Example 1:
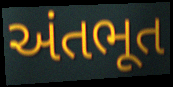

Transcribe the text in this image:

અંતભૂત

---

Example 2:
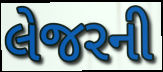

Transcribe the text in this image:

લેજરની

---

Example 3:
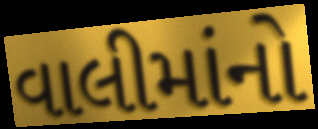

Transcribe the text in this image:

વાલીમાંનો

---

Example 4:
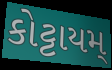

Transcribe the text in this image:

કોટ્ટાયમ્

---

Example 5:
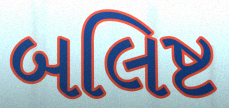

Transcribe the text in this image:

બલિષ્ટ